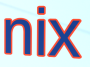
nix